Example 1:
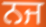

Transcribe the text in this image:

ਨਜ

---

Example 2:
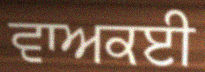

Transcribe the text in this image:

ਵਾਅਕਈ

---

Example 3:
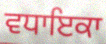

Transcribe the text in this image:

ਵਧਾਇਕਾ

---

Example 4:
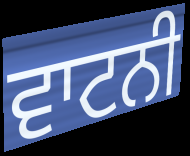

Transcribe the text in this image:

ਵਾਟਨੀ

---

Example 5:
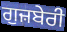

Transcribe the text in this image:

ਗੁਜ਼ਬੇਰੀ